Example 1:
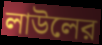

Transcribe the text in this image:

লাউলের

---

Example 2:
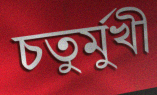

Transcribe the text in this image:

চতুর্মুখী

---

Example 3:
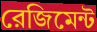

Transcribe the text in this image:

রেজিমেন্ট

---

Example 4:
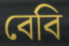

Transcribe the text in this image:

বেবি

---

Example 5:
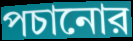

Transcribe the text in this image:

পচানোর